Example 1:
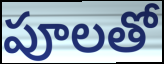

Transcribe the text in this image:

పూలతో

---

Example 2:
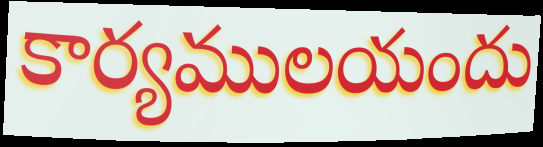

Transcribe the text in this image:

కార్యములయందు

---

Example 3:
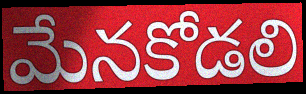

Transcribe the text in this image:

మేనకోడలి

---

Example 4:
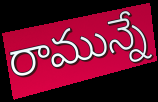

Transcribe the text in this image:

రామున్నే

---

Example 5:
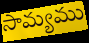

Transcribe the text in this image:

సామ్యము